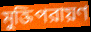
মুক্তিপরায়ণ